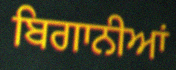
ਬਿਗਾਨੀਆਂ